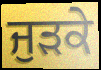
ਜੁੜਕੇ